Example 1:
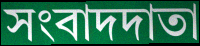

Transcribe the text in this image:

সংবাদদাতা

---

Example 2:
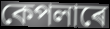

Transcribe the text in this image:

কেপলাৰে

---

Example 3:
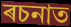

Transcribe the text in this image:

ৰচনাত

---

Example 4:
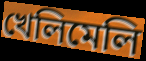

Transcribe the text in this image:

খেলিমেলি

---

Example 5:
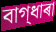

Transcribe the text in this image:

বাগ্‌ধাৰা